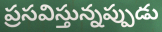
ప్రసవిస్తున్నప్పుడు